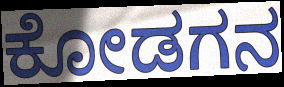
ಕೋಡಗನ